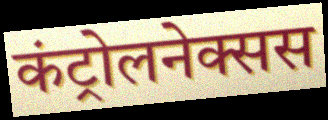
कंट्रोलनेक्सस